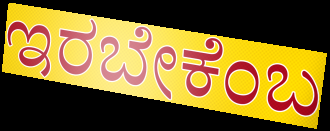
ಇರಬೇಕೆಂಬ